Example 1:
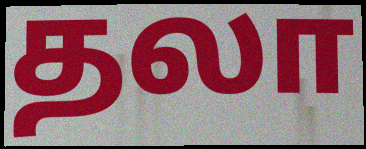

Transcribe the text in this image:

தலா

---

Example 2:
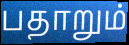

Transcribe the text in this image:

பதாறும்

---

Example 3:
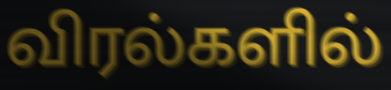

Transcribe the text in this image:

விரல்களில்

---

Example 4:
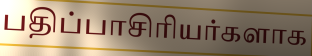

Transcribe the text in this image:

பதிப்பாசிரியர்களாக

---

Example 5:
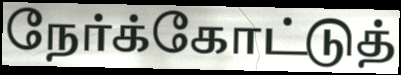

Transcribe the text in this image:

நேர்க்கோட்டுத்